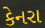
કેનરા